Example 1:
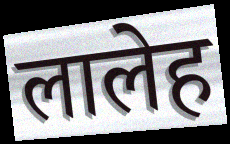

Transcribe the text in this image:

लालेह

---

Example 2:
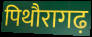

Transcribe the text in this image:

पिथौरागढ़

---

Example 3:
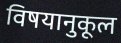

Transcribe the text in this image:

विषयानुकूल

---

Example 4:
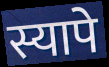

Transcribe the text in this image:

स्यापे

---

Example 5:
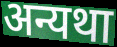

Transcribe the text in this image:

अन्यथा